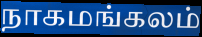
நாகமங்கலம்